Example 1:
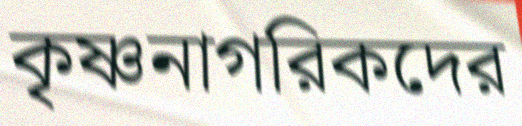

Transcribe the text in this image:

কৃষ্ণনাগরিকদের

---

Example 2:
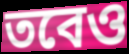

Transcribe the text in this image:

তবেও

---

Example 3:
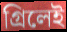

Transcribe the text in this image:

গ্রিলেই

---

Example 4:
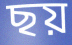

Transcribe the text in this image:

ছয়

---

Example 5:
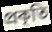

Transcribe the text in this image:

প্রকৃতি